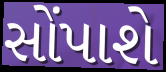
સોંપાશે